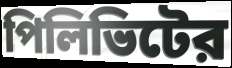
পিলিভিটের